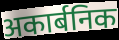
अकार्बनिक